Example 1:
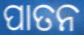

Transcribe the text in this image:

ପାତନ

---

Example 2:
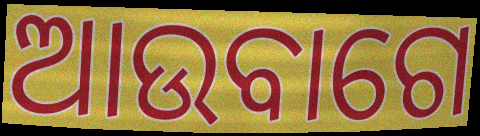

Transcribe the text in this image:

ଆଉବାଗେ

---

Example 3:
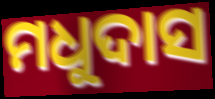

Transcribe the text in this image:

ମଧୁଦାସ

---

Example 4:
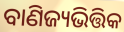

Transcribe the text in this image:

ବାଣିଜ୍ୟଭିତ୍ତିକ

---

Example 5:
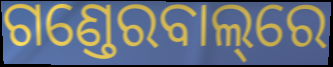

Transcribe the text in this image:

ଗଣ୍ଡେରବାଲ୍‌ରେ